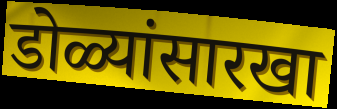
डोळ्यांसारखा